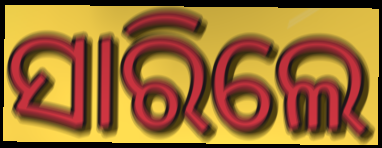
ସାରିଲେ